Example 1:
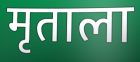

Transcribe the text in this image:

मृताला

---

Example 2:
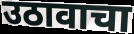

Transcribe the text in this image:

उठावाचा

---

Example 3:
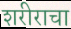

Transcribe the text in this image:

शरीराचा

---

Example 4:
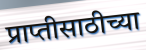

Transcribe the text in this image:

प्राप्तीसाठीच्या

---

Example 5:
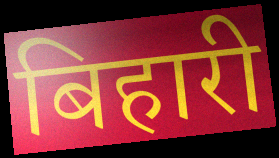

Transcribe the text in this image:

बिहारी